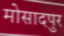
मोसादपुर